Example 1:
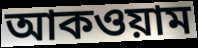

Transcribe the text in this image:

আকওয়াম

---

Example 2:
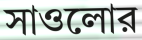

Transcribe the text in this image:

সাওলোর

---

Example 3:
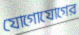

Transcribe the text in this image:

যোগোযোগের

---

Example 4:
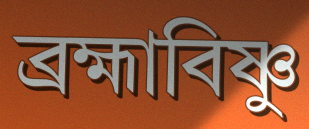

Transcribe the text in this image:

ব্রহ্মাবিষ্ণু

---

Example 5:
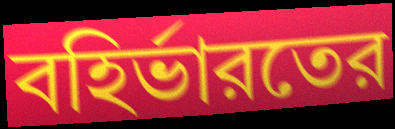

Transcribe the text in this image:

বহির্ভারতের